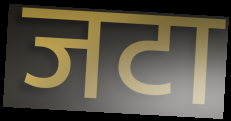
जटा